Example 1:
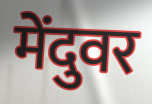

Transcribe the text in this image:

मेंदुवर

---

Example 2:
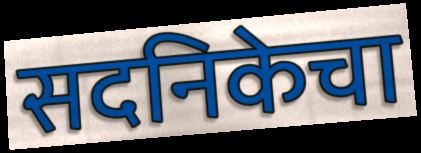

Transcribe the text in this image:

सदनिकेचा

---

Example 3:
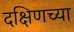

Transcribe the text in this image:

दक्षिणच्या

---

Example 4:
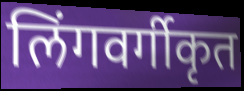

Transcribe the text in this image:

लिंगवर्गीकृत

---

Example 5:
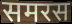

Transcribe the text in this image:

समरस